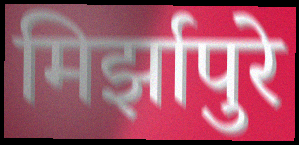
मिर्झापुरे